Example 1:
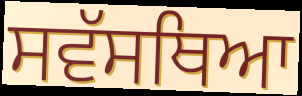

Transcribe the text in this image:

ਸਵੱਸਥਿਆ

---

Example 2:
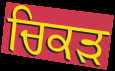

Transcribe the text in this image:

ਚਿਕੜ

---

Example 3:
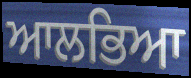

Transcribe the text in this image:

ਆਲਭਿਆ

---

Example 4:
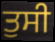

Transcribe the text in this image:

ਤੁਸੀ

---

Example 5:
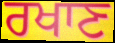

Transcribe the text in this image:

ਰਖਾਣ